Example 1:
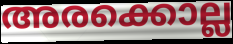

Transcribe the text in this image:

അരക്കൊല്ല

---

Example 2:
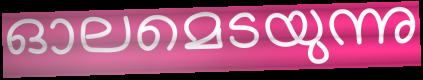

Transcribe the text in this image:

ഓലമെടയുന്നു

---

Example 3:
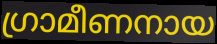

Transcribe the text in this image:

ഗ്രാമീണനായ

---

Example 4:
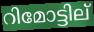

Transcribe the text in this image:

റിമോട്ടില്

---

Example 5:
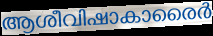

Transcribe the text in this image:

ആശീവിഷാകാരൈർ